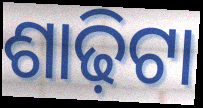
ଶାଢ଼ିଟା